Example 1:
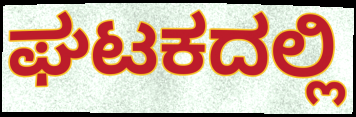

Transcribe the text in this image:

ಘಟಕದಲ್ಲಿ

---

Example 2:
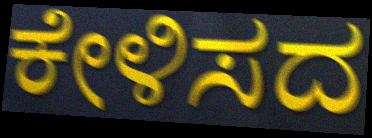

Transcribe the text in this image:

ಕೇಳಿಸದ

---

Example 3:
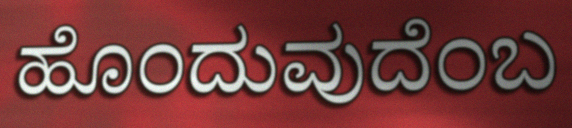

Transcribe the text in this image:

ಹೊಂದುವುದೆಂಬ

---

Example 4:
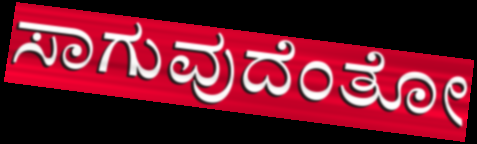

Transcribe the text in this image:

ಸಾಗುವುದೆಂತೋ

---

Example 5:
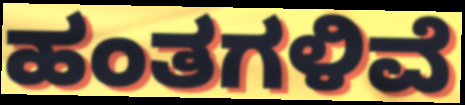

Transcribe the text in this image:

ಹಂತಗಳಿವೆ